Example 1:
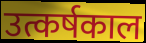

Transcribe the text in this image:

उत्कर्षकाल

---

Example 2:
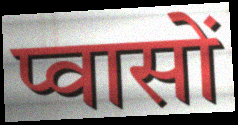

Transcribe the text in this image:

प्वासों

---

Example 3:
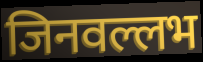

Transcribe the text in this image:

जिनवल्लभ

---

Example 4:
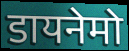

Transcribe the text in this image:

डायनेमो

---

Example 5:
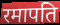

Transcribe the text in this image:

रमापति